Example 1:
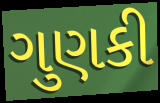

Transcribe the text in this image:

ગુણકી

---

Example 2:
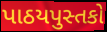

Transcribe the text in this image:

પાઠયપુસ્તકો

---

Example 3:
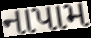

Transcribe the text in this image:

નાપામ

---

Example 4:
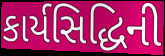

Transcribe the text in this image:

કાર્યસિદ્ધિની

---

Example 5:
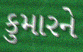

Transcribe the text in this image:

કુમારને